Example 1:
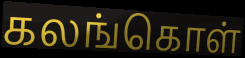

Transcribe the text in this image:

கலங்கொள்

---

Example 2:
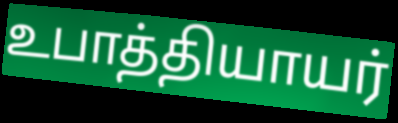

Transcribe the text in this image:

உபாத்தியாயர்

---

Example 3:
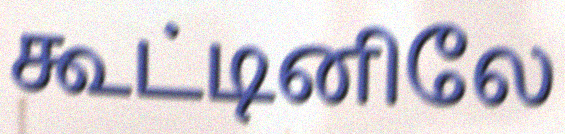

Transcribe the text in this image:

கூட்டினிலே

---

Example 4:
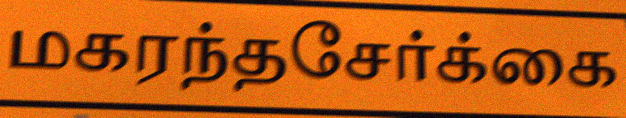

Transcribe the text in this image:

மகரந்தசேர்க்கை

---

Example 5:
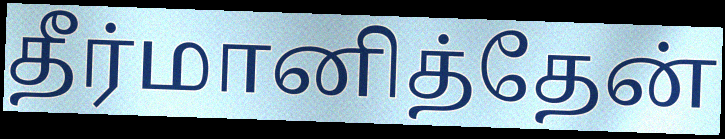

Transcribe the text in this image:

தீர்மானித்தேன்